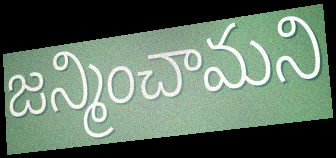
జన్మించామని